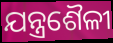
ଯନ୍ତ୍ରଶୈଳୀ